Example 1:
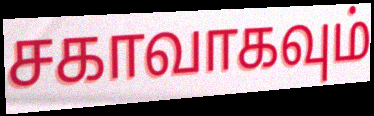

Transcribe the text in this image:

சகாவாகவும்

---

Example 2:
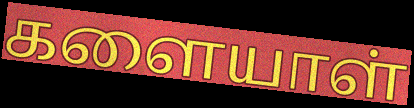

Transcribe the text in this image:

களையாள்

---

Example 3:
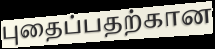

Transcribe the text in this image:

புதைப்பதற்கான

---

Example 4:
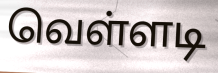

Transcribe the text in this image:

வெள்ளடி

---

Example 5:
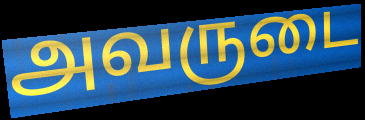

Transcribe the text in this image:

அவருடை